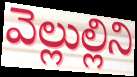
వెల్లుల్లిని